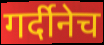
गर्दीनेच